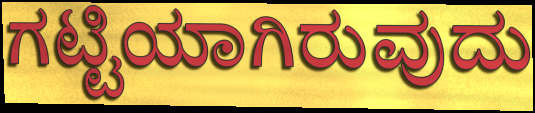
ಗಟ್ಟಿಯಾಗಿರುವುದು